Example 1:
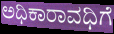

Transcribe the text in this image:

ಅಧಿಕಾರಾವಧಿಗೆ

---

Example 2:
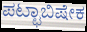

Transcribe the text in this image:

ಪಟ್ಟಾಬಿಷೇಕ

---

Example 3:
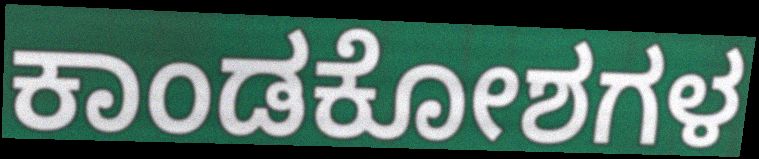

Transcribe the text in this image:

ಕಾಂಡಕೋಶಗಳ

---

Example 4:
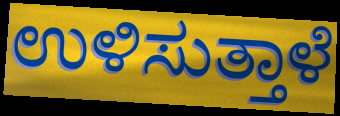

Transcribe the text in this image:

ಉಳಿಸುತ್ತಾಳೆ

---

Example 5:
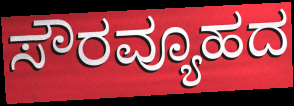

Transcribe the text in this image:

ಸೌರವ್ಯೂಹದ